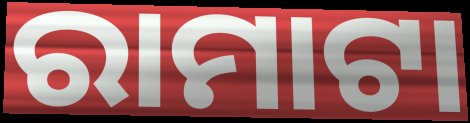
ରାମାଟା